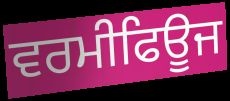
ਵਰਮੀਫਿਊਜ